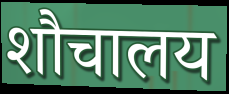
शौचालय